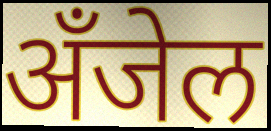
अँजेल